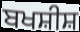
ਬਖਸ਼ੀਸ਼